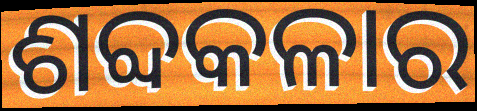
ଶବ୍ଦକଳାର